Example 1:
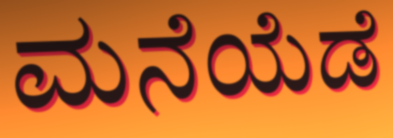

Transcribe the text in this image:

ಮನೆಯೆಡೆ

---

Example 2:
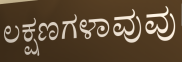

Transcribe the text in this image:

ಲಕ್ಷಣಗಳಾವುವು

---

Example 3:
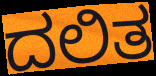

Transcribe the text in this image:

ದಲಿತ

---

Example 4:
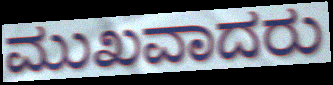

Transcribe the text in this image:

ಮುಖವಾದರು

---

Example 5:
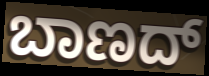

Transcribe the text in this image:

ಬಾಣದ್